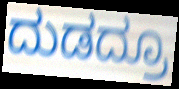
ದುಡದ್ರೂ